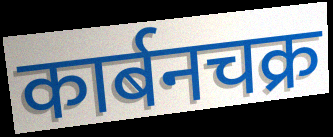
कार्बनचक्र